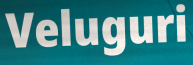
Veluguri